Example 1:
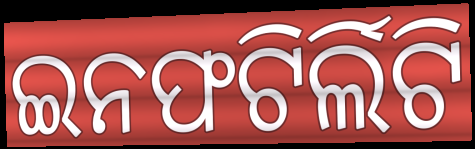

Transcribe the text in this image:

ଇନଫଟିର୍ଲିଟି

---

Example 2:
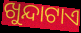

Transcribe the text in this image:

ଖୁନ୍ଦାଟାଏ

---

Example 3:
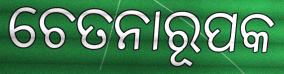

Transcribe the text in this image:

ଚେତନାରୂପକ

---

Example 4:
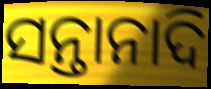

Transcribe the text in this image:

ସନ୍ତାନାଦି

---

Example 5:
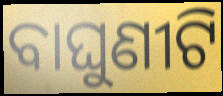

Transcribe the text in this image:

ବାଘୁଣୀଟି